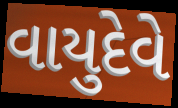
વાયુદેવે